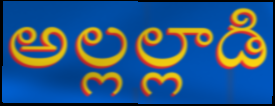
అల్లల్లాడి